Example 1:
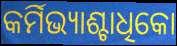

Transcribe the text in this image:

କର୍ମିଭ୍ୟାଶ୍ଚାଧିକୋ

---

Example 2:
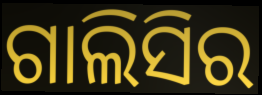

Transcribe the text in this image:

ଗାଲିସିର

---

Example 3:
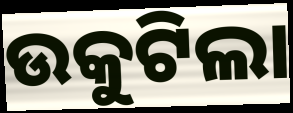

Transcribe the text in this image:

ଉକୁଟିଲା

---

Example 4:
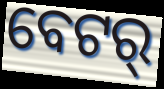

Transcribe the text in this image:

ବେଟର୍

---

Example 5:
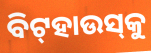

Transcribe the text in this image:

ବିଟ୍‌ହାଉସ୍‌କୁ